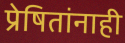
प्रेषितांनाही